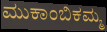
ಮುಕಾಂಬಿಕಮ್ಮ